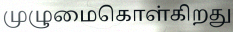
முழுமைகொள்கிறது